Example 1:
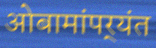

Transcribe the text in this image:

ओबामांपर्यंत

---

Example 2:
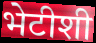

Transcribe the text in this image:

भेटीशी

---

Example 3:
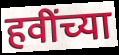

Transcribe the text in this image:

हवींच्या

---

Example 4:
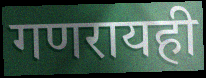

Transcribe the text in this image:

गणरायही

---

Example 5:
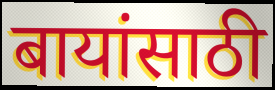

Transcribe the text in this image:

बायांसाठी